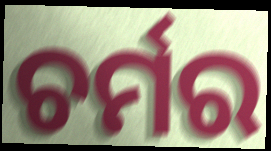
ଚର୍ମର